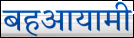
बहआयामी